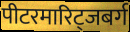
पीटरमारिट्जबर्ग